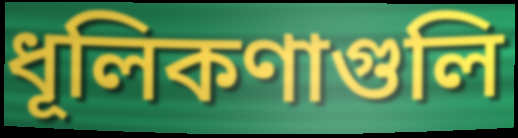
ধূলিকণাগুলি